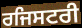
ਰਜਿਸਟਰੀ